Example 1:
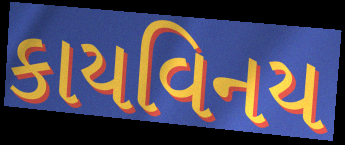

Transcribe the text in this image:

કાયવિનય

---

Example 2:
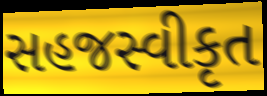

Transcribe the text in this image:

સહજસ્વીકૃત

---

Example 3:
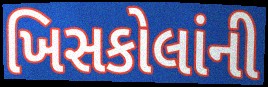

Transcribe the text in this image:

ખિસકોલાંની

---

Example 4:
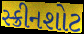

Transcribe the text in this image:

સ્ક્રીનશોટ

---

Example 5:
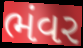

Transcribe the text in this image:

ભંવર